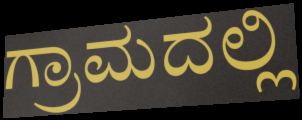
ಗ್ರಾಮದಲ್ಲಿ